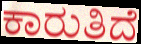
ಕಾರುತಿದೆ